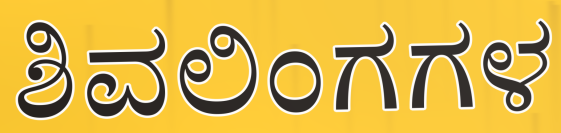
ಶಿವಲಿಂಗಗಳ